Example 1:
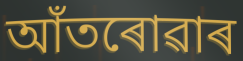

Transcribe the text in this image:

আঁতৰোৱাৰ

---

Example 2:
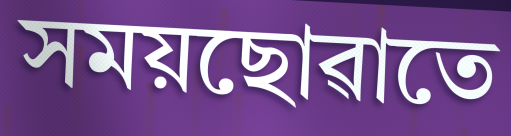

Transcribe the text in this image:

সময়ছোৱাতে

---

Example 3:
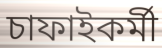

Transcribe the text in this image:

চাফাইকৰ্মী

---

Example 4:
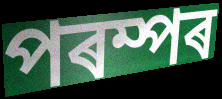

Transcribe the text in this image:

পৰম্পৰ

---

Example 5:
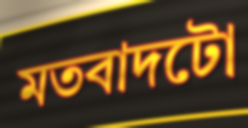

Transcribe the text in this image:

মতবাদটো